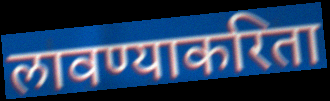
लावण्याकरिता